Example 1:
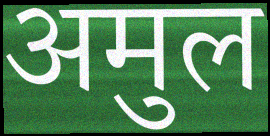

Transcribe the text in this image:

अमुल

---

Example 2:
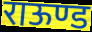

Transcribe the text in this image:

राऊण्ड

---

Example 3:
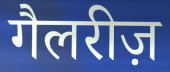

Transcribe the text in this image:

गैलरीज़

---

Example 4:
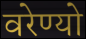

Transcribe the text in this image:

वरेण्यो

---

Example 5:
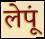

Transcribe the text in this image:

लेपूं